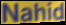
Nahid